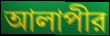
আলাপীর